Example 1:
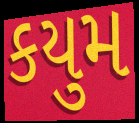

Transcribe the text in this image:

કયુમ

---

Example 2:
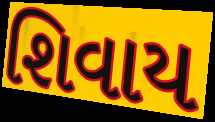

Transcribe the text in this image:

શિવાય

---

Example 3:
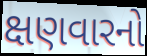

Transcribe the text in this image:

ક્ષણવારનો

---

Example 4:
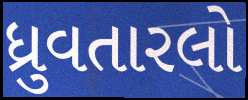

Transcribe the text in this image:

ધ્રુવતારલો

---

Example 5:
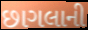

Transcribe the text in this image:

છાગલાની